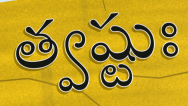
త్వష్టుః